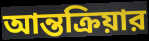
আন্তক্রিয়ার